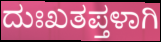
ದುಃಖತಪ್ತಳಾಗಿ